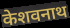
केशवनाथ